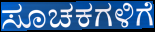
ಸೂಚಕಗಳಿಗೆ